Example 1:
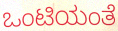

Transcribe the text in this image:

ಒಂಟಿಯಂತೆ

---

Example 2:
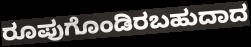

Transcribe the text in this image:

ರೂಪುಗೊಂಡಿರಬಹುದಾದ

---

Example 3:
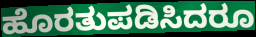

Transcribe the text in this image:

ಹೊರತುಪಡಿಸಿದರೂ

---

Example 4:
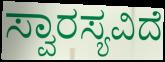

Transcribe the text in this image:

ಸ್ವಾರಸ್ಯವಿದೆ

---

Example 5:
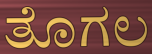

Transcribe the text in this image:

ತೊಗಲ